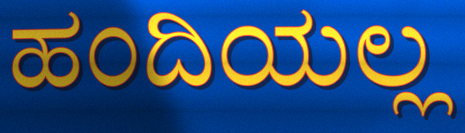
ಹಂದಿಯಲ್ಲ